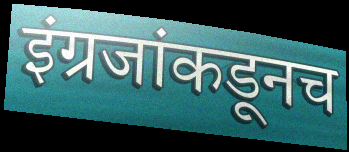
इंग्रजांकडूनच